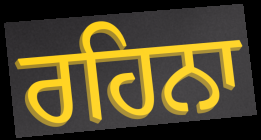
ਰਹਿਨਾ